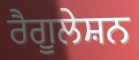
ਰੈਗੂਲੇਸ਼ਨ